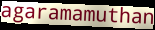
agaramamuthan